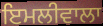
ਇਮਲੀਵਾਲਾ